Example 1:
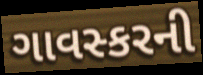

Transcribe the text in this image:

ગાવસ્કરની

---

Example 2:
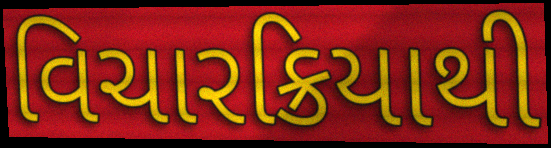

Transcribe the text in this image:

વિચારક્રિયાથી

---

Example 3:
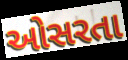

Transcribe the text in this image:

ઓસરતા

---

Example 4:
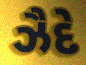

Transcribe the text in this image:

ઝૈદે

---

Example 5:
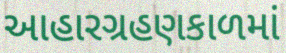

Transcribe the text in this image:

આહારગ્રહણકાળમાં